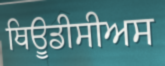
ਥਿਊਡੀਸੀਅਸ